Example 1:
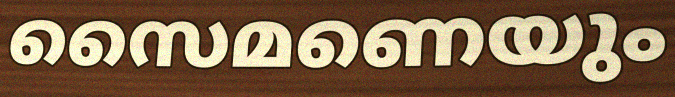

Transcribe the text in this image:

സൈമണെയും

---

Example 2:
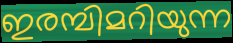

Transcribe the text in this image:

ഇരമ്പിമറിയുന്ന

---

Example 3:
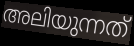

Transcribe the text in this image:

അലിയുന്നത്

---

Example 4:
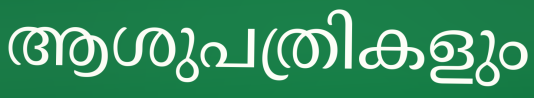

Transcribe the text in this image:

ആശുപത്രികളും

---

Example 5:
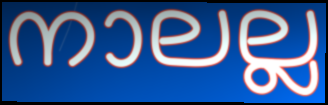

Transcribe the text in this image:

നാലല്ല